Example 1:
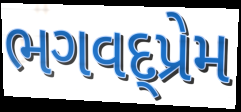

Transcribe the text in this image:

ભગવદ્પ્રેમ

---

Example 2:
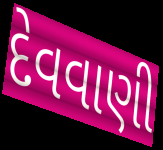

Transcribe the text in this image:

દેવવાણી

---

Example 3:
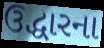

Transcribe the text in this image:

ઉદ્ધારના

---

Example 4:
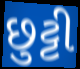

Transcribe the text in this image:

છુટ્ટી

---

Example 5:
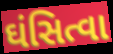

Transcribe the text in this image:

ઘંસિત્વા